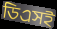
ডিএসই